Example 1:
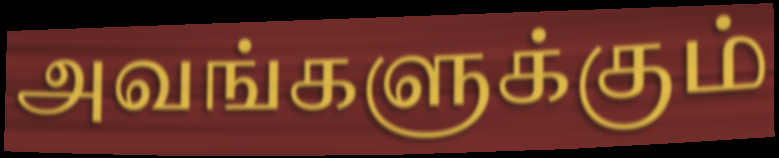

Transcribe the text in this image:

அவங்களுக்கும்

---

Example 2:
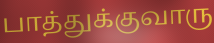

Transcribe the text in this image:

பாத்துக்குவாரு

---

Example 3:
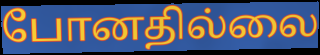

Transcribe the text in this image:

போனதில்லை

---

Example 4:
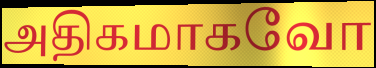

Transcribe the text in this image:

அதிகமாகவோ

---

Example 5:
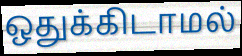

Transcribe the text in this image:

ஒதுக்கிடாமல்